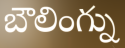
బౌలింగ్ను